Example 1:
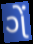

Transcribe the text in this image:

ગેં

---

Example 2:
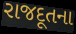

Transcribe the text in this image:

રાજદૂતના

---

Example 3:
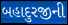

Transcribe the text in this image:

બહાદુરજીની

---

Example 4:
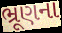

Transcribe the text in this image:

ભ્રૂણના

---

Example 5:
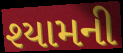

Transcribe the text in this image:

શ્યામની